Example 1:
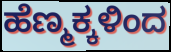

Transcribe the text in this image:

ಹೆಣ್ಮಕ್ಕಳಿಂದ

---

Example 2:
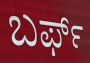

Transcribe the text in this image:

ಬರ್ಫ್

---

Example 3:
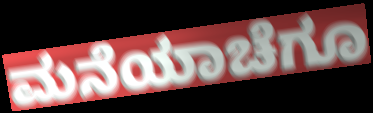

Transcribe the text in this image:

ಮನೆಯಾಚೆಗೂ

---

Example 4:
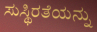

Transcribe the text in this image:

ಸುಸ್ಥಿರತೆಯನ್ನು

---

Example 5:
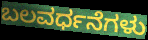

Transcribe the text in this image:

ಬಲವರ್ಧನೆಗಳು